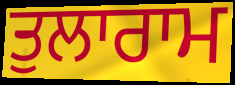
ਤੁਲਾਰਾਮ